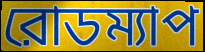
রোডম্যাপ